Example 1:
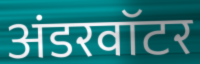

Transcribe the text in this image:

अंडरवॉटर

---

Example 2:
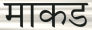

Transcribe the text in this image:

माकड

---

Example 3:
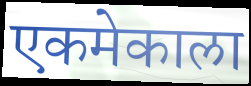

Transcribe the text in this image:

एकमेकाला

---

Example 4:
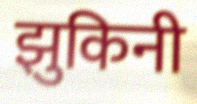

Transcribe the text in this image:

झुकिनी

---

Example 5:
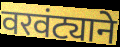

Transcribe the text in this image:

वरवंट्याने